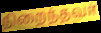
நிறைந்தவர்